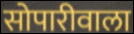
सोपारीवाला